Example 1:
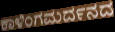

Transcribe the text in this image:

ಕಾಳಿಂಗಮರ್ದನದ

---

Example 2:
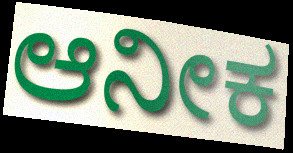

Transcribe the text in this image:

ಆನೀಕ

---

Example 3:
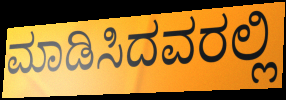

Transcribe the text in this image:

ಮಾಡಿಸಿದವರಲ್ಲಿ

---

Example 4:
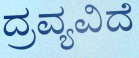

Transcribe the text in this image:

ದ್ರವ್ಯವಿದೆ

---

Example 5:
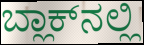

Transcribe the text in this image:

ಬ್ಲಾಕ್‌ನಲ್ಲಿ